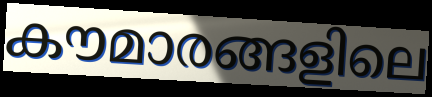
കൗമാരങ്ങളിലെ